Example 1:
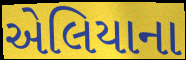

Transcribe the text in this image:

એલિયાના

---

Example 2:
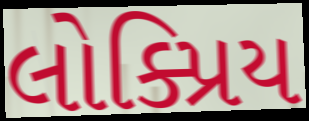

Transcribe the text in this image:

લોક્પ્રિય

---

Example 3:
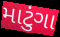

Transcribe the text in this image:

માટુંગા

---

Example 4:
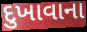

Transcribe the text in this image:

દુખાવાના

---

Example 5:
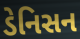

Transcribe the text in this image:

ડેનિસન